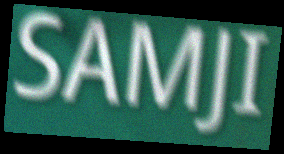
SAMJI